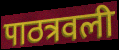
पाठत्रवली